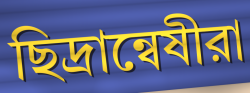
ছিদ্রান্বেষীরা